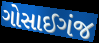
ગોસાઈગંજ